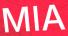
MIA